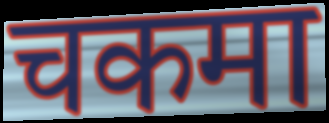
चकमा